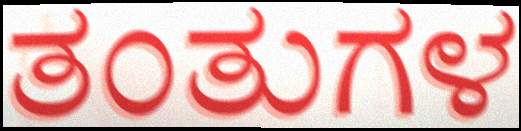
ತಂತುಗಳ